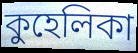
কুহেলিকা